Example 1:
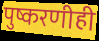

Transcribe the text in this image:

पुष्करणीही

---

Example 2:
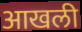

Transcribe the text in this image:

आखली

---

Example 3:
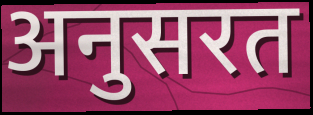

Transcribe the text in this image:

अनुसरत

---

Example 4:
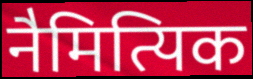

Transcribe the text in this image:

नैमित्यिक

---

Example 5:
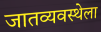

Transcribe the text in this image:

जातव्यवस्थेला